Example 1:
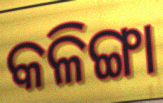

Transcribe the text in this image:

କଳିଙ୍ଗା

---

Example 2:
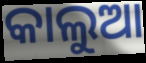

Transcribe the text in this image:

କାଲୁଆ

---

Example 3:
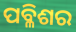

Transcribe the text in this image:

ପବ୍ଳିଶର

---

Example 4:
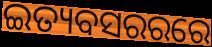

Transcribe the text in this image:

ଇତ୍ୟବସରରରେ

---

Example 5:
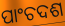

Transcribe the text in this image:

ପାଂଚଦଶ